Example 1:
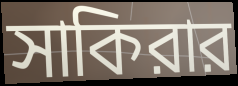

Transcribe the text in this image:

সাকিরার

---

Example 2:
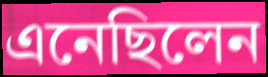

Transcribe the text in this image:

এনেছিলেন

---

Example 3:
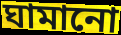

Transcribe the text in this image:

ঘামানো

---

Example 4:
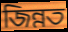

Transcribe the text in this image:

জিন্নত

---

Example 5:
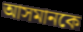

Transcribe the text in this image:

আসমানকে